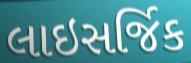
લાઇસર્જિક